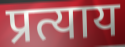
प्रत्याय